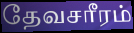
தேவசரீரம்